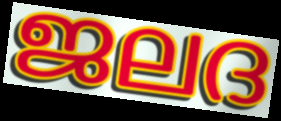
ജലദ